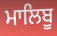
ਮਾਲਿਬੂ